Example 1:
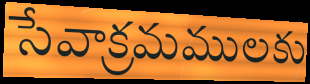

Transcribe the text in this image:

సేవాక్రమములకు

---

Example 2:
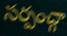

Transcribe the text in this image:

సర్పంచ్గా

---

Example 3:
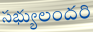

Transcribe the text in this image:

సభ్యులందరి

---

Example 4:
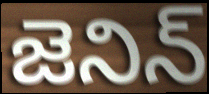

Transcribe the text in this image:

జెనిన్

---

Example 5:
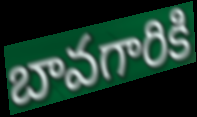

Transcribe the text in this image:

బావగారికి